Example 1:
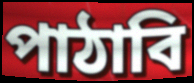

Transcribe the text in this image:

পাঠাবি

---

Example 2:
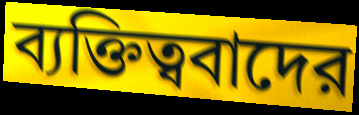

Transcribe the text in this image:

ব্যক্তিত্ববাদের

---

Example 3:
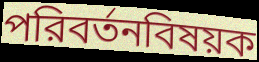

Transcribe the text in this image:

পরিবর্তনবিষয়ক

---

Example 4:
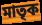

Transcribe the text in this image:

মাতৃক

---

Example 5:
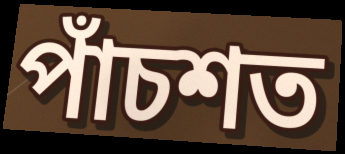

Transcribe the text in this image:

পাঁচশত